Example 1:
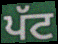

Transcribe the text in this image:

ਪੱਟ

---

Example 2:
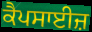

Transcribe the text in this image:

ਕੈਪਸਾਈਜ਼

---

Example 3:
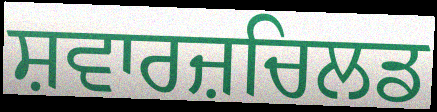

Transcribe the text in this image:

ਸ਼ਵਾਰਜ਼ਚਿਲਡ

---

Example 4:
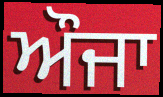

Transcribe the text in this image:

ਔਜਾ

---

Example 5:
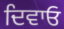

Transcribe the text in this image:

ਦਿਵਾਓ